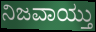
ನಿಜವಾಯ್ತು